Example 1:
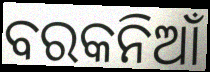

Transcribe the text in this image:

ବରକନିଆଁ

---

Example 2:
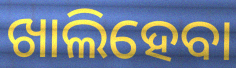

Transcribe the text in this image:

ଖାଲିହେବା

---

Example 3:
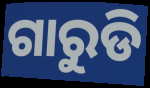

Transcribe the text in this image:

ଗାରୁଡି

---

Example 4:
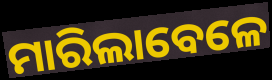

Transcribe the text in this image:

ମାରିଲାବେଳେ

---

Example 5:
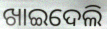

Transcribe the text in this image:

ଖାଇଦେଲି